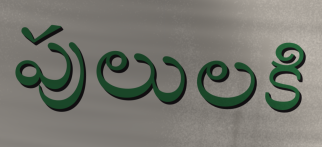
పులులకి